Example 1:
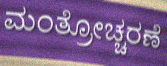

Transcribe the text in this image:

ಮಂತ್ರೋಚ್ಚರಣೆ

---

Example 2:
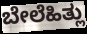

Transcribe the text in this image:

ಬೇಲೆಹಿತ್ಲು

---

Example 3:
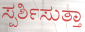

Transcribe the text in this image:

ಸ್ಪರ್ಶಿಸುತ್ತಾ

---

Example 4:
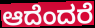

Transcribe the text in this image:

ಆದೆಂದರೆ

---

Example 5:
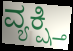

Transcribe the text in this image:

ವ್ಯಕ್ಷ್ತಿ